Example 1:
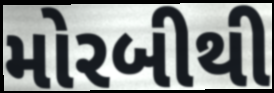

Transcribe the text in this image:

મોરબીથી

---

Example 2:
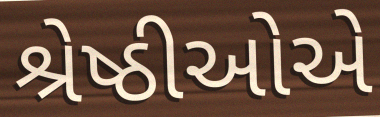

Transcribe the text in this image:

શ્રેષ્ઠીઓએ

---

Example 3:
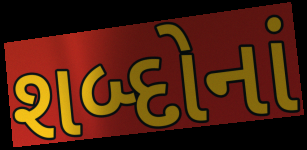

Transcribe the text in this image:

શબ્દોનાં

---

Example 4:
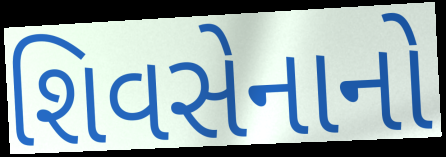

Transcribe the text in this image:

શિવસેનાનો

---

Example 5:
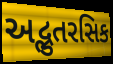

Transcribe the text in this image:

અદ્ભુતરસિક